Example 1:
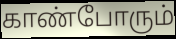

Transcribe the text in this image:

காண்போரும்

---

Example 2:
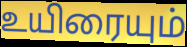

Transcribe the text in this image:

உயிரையும்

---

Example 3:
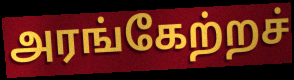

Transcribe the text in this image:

அரங்கேற்றச்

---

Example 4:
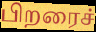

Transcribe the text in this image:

பிறரைச்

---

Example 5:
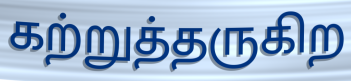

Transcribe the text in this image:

கற்றுத்தருகிற